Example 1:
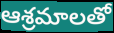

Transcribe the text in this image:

ఆశ్రమాలతో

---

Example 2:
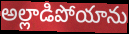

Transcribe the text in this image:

అల్లాడిపోయాను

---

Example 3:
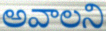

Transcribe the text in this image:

అవాలని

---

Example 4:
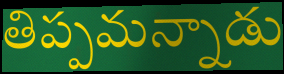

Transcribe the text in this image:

తిప్పమన్నాడు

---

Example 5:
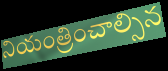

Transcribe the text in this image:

నియంత్రించాల్సిన